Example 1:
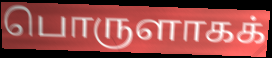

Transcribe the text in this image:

பொருளாகக்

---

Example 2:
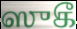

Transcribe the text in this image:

ஸுகீ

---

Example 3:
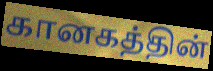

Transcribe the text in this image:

கானகத்தின்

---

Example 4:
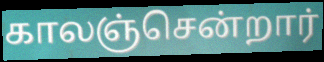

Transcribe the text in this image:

காலஞ்சென்றார்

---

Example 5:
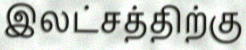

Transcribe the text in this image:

இலட்சத்திற்கு